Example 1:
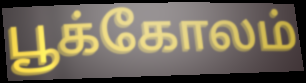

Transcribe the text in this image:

பூக்கோலம்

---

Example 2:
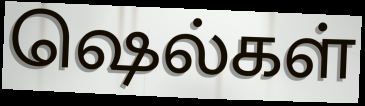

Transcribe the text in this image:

ஷெல்கள்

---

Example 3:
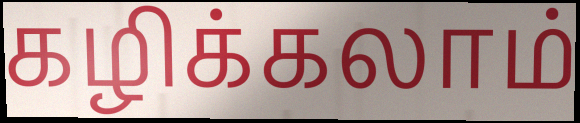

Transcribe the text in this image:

கழிக்கலாம்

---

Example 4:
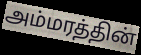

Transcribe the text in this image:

அம்மரத்தின்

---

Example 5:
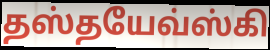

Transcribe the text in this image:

தஸ்தயேவ்ஸ்கி